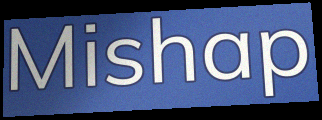
Mishap